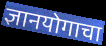
ज्ञानयोगाचा